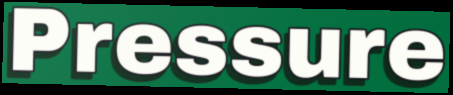
Pressure